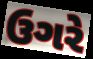
ઉગરે